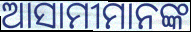
ଆସାମୀମାନଙ୍କ